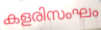
കളരിസംഘം